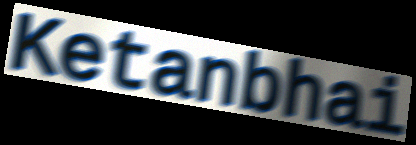
Ketanbhai